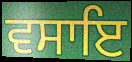
ਵਸਾਇ